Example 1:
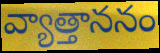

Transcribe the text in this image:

వ్యాత్తాననం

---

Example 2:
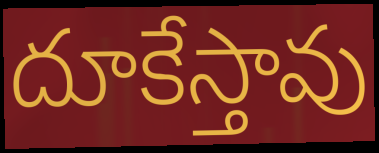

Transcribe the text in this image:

దూకేస్తావు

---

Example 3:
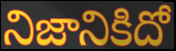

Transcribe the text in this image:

నిజానికిదో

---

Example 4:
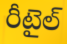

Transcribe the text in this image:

రీటైల్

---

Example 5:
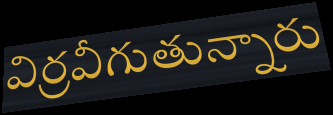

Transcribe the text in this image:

విర్రవీగుతున్నారు